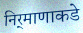
निर्माणाकडे